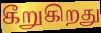
கீறுகிறது